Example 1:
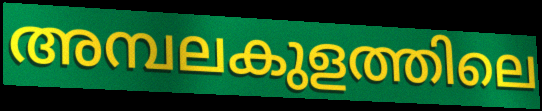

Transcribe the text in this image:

അമ്പലകുളത്തിലെ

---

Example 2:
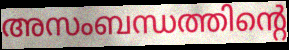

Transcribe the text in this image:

അസംബന്ധത്തിന്റെ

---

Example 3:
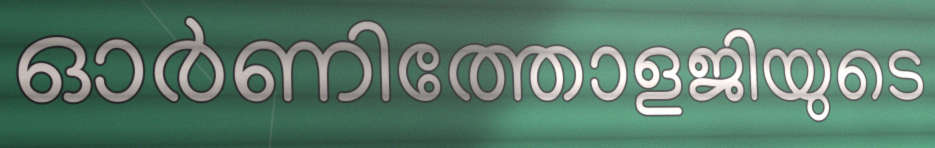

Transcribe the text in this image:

ഓർണിത്തോളജിയുടെ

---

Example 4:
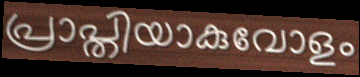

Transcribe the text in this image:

പ്രാപ്തിയാകുവോളം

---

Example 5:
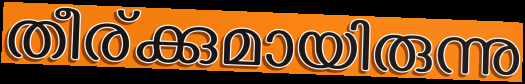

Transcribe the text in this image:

തീര്ക്കുമായിരുന്നു